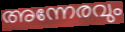
അന്നേരവും